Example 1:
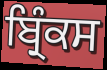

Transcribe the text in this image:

ਬ੍ਰਿੰਕਸ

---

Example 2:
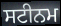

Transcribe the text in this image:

ਸਟੀਨਮ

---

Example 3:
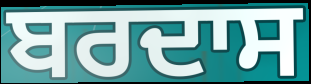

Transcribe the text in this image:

ਬਰਦਾਸ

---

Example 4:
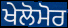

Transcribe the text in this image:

ਖੇਲੋਮੋਰ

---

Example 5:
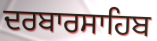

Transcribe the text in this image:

ਦਰਬਾਰਸਾਹਿਬ